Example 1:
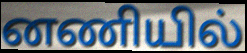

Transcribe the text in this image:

னணியில்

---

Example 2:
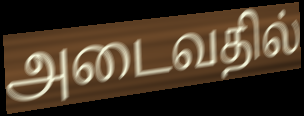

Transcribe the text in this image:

அடைவதில்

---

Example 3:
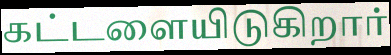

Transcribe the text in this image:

கட்டளையிடுகிறார்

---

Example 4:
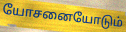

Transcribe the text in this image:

யோசனையோடும்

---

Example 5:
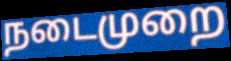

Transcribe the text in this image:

நடைமுறை